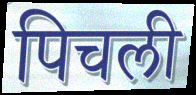
पिचली